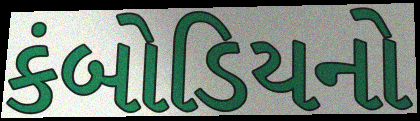
કંબોડિયનો